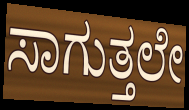
ಸಾಗುತ್ತಲೇ